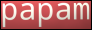
papam